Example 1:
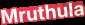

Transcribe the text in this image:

Mruthula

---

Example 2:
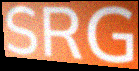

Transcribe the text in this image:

SRG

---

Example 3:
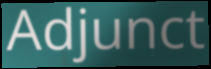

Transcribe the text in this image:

Adjunct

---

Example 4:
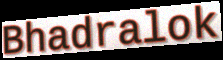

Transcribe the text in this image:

Bhadralok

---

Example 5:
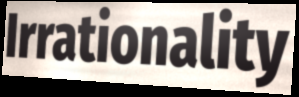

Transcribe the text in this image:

Irrationality